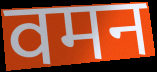
वमन